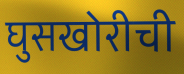
घुसखोरीची